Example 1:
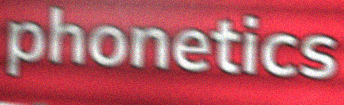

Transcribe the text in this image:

phonetics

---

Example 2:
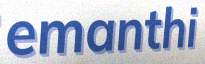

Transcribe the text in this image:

emanthi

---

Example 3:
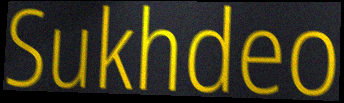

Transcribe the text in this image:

Sukhdeo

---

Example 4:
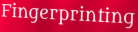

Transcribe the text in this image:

Fingerprinting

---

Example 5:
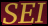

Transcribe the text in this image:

SEI